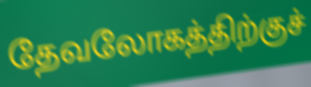
தேவலோகத்திற்குச்